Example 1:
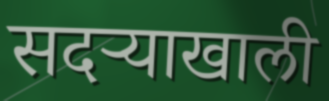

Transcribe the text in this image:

सदऱ्याखाली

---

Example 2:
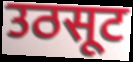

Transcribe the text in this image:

उठसूट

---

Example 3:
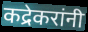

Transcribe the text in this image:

कद्रेकरांनी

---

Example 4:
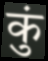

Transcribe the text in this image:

कुं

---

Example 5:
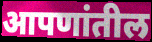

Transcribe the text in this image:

आपणांतील